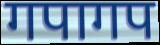
गपागप